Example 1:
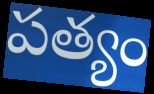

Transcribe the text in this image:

పత్యం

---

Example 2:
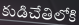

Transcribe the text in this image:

కుడిచేతిలోకి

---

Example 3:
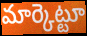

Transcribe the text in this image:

మార్కెట్టూ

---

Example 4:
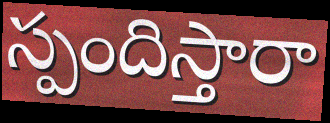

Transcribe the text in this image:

స్పందిస్తారా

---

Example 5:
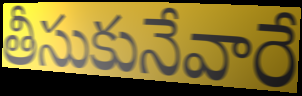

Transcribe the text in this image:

తీసుకునేవారే